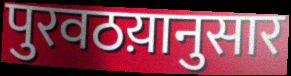
पुरवठय़ानुसार